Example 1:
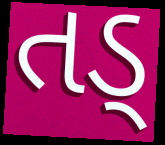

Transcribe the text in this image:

તડ્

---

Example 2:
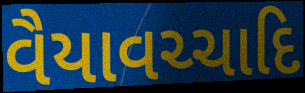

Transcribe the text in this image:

વૈયાવચ્ચાદિ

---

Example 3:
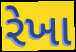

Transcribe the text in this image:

રેખા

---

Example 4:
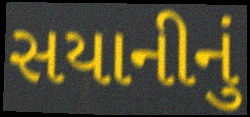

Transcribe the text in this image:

સયાનીનું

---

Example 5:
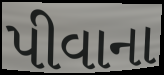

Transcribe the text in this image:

પીવાના